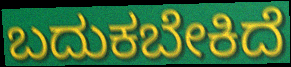
ಬದುಕಬೇಕಿದೆ